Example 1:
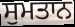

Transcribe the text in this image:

ਸੁਮਤਾਨ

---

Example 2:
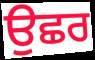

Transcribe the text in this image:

ਉਛਰ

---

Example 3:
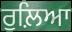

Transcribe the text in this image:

ਰੁਲ਼ਿਆ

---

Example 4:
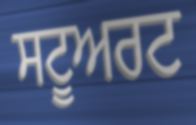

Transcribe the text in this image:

ਸਟੂਅਰਟ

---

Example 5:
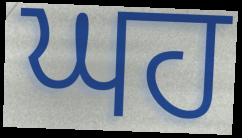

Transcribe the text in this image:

ਘਹ